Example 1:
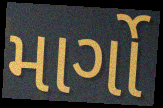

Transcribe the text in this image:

માર્ગો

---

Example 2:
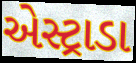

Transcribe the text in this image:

એસ્ટ્રાડા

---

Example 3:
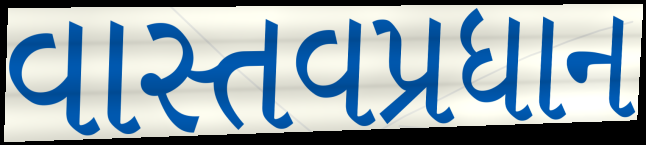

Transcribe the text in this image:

વાસ્તવપ્રધાન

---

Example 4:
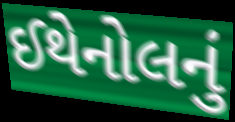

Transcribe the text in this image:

ઈથેનોલનું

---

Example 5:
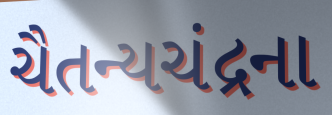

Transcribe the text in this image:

ચૈતન્યચંદ્રના